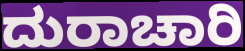
ದುರಾಚಾರಿ